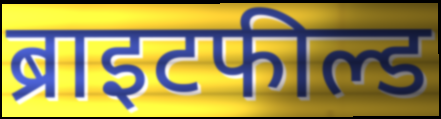
ब्राइटफील्ड